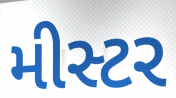
મીસ્ટર